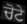
ਚੋਟੇ